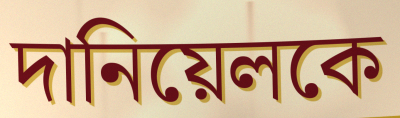
দানিয়েলকে